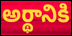
అర్థానికి